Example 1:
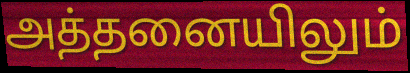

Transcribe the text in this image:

அத்தனையிலும்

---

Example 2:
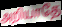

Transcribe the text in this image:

அறியாதே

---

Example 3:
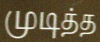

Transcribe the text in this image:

முடித்த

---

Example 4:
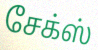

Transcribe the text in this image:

சேக்ஸ்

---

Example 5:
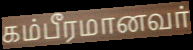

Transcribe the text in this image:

கம்பீரமானவர்